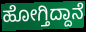
ಹೋಗ್ತಿದ್ದಾನೆ